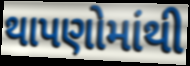
થાપણોમાંથી